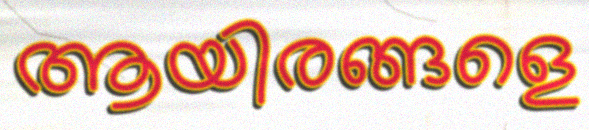
ആയിരങ്ങളെ